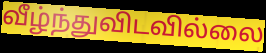
வீழ்ந்துவிடவில்லை